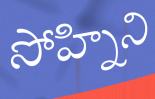
సోహ్నిని